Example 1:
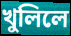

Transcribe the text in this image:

খুলিলে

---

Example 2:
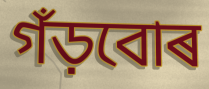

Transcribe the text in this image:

গঁড়বোৰ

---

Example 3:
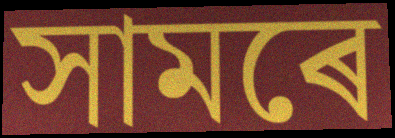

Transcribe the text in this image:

সামৰে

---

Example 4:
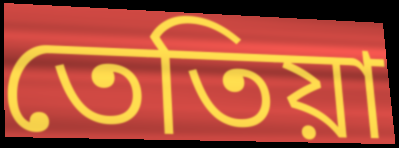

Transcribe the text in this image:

তেতিয়া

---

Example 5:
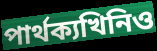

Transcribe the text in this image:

পাৰ্থক্যখিনিও